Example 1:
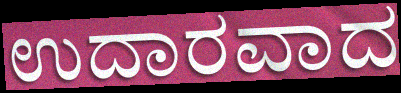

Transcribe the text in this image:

ಉದಾರವಾದ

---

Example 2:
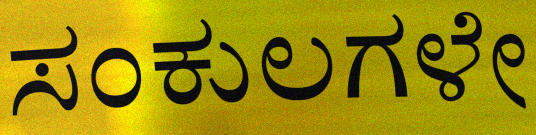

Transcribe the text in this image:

ಸಂಕುಲಗಳೇ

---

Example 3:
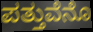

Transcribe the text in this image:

ಪತ್ತುವೆನೊ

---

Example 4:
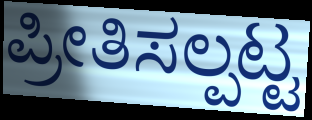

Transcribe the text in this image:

ಪ್ರೀತಿಸಲ್ಪಟ್ಟ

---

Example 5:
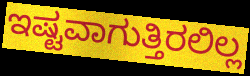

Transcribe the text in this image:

ಇಷ್ಟವಾಗುತ್ತಿರಲಿಲ್ಲ